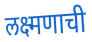
लक्ष्मणाची